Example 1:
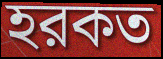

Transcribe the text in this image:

হরকত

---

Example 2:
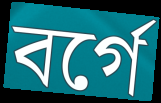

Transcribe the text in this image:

বর্গে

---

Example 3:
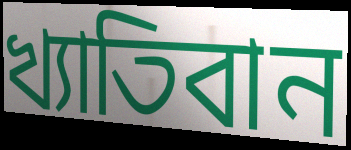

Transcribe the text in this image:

খ্যাতিবান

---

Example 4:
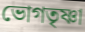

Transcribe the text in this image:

ভোগতৃষ্ণা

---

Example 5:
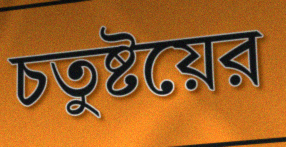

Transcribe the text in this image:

চতুষ্টয়ের